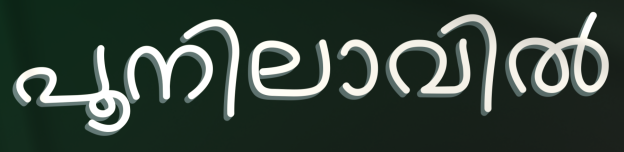
പൂനിലാവിൽ